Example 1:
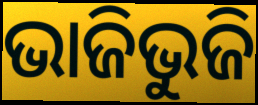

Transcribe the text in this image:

ଭାଜିଭୁଜି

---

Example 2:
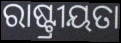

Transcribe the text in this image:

ରାଷ୍ଟ୍ରୀୟତା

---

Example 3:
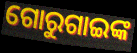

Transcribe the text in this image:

ଗୋରୁଗାଇଙ୍କ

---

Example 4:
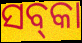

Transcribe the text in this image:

ସବ୍‌କା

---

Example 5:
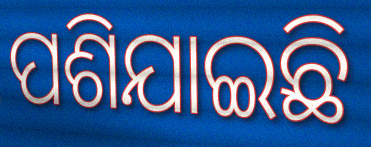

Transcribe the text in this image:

ପଶିଯାଇଛି